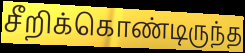
சீறிக்கொண்டிருந்த